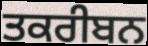
ਤਕਰੀਬਨ